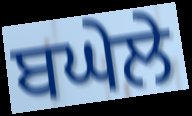
ਬਘੇਲੇ